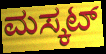
ಮಸ್ಕಟ್